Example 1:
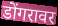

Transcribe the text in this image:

डोंगरावर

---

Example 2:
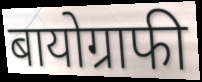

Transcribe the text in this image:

बायोग्राफी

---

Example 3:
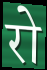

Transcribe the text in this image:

रो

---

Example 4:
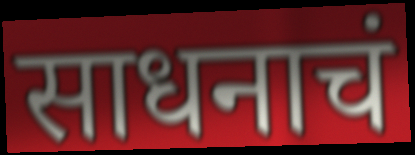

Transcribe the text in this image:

साधनाचं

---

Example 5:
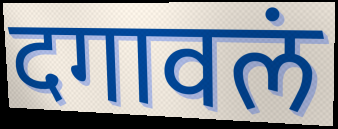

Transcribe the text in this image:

दगावलं